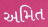
અમિત